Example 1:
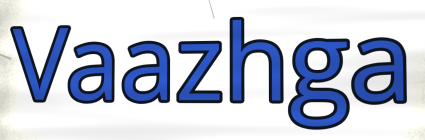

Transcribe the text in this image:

Vaazhga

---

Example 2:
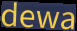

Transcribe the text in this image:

dewa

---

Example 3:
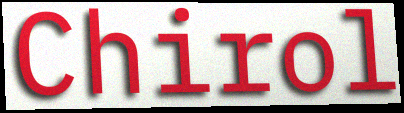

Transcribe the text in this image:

Chirol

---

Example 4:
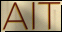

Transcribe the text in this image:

AIT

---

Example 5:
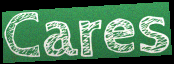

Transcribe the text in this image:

Cares